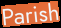
Parish